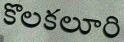
కొలకలూరి